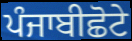
ਪੰਜਾਬੀਛੋਟੇ